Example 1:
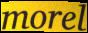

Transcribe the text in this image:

morel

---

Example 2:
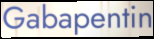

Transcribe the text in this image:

Gabapentin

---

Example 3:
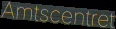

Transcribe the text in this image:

Amtscentret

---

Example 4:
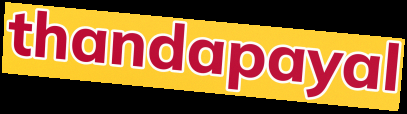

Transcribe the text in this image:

thandapayal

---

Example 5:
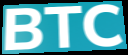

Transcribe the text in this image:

BTC